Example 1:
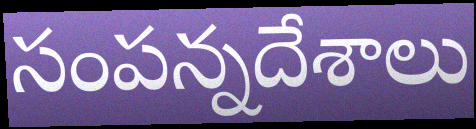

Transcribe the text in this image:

సంపన్నదేశాలు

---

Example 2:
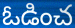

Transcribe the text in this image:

ఓడించ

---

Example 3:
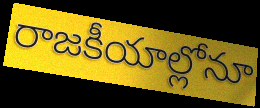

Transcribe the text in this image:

రాజకీయాల్లోనూ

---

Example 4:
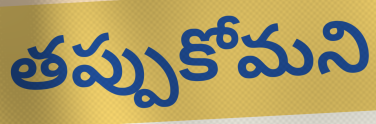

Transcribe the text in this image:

తప్పుకోమని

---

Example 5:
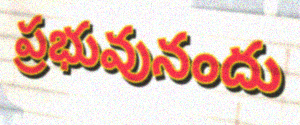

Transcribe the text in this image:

ప్రభువునందు